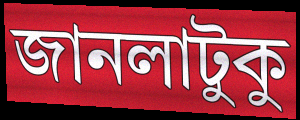
জানলাটুকু